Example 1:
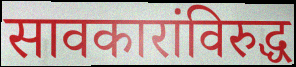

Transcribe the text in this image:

सावकारांविरुद्ध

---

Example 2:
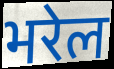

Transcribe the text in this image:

भरेल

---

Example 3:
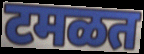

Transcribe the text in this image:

टमळत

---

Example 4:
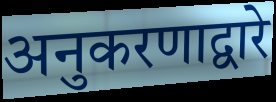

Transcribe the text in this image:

अनुकरणाद्वारे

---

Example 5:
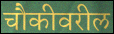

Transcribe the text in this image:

चौकीवरील